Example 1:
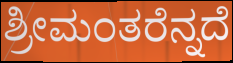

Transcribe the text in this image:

ಶ್ರೀಮಂತರೆನ್ನದೆ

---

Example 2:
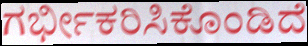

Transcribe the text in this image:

ಗರ್ಭೀಕರಿಸಿಕೊಂಡಿದೆ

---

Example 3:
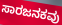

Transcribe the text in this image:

ಸಾರಜನಕವು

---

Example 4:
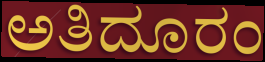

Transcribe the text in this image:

ಅತಿದೂರಂ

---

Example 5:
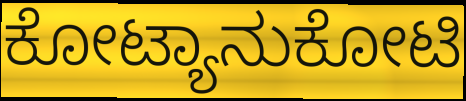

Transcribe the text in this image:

ಕೋಟ್ಯಾನುಕೋಟಿ